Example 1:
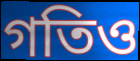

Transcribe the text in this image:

গতিও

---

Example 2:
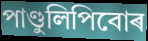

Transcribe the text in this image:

পাণ্ডুলিপিবোৰ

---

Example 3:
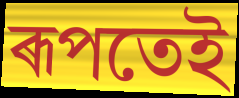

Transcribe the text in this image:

ৰূপতেই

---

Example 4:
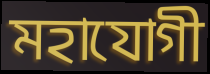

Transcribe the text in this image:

মহাযোগী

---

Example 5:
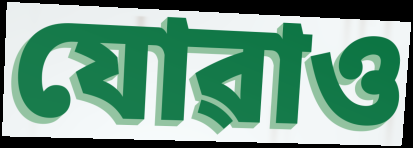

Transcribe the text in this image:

যোৱাও